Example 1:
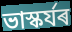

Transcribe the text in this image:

ভাস্কৰ্যৰ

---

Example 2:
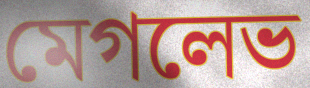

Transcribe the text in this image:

মেগলেভ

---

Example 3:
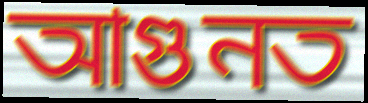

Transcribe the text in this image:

আগুনত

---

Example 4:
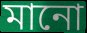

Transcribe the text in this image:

মানো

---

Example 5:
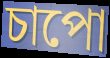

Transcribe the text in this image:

চাপো